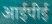
आईपीई